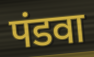
पंडवा